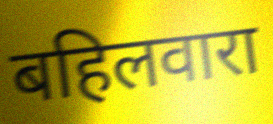
बहिलवारा